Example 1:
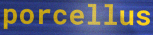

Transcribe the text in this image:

porcellus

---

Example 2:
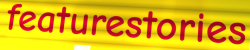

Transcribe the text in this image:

featurestories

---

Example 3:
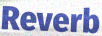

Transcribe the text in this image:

Reverb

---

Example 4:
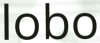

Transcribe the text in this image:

lobo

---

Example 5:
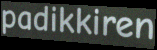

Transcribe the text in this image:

padikkiren